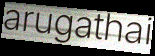
arugathai